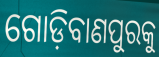
ଗୋଡ଼ିବାଣପୁରକୁ